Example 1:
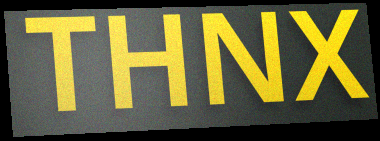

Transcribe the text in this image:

THNX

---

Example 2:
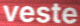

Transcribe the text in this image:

veste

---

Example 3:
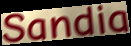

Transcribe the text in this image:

Sandia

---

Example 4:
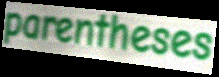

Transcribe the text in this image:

parentheses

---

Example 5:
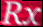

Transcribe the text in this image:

Rx